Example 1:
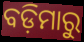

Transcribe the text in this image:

ବଡ଼ିମାରୁ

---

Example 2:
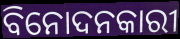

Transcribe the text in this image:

ବିନୋଦନକାରୀ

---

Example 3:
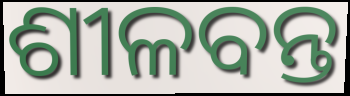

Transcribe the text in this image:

ଶୀଳବନ୍ତ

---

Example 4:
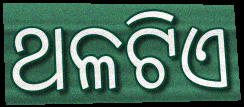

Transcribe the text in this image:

ଥଳଟିଏ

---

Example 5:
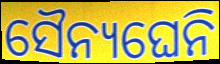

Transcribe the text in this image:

ସୈନ୍ୟଘେନି